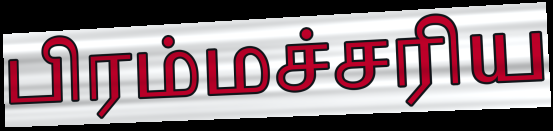
பிரம்மச்சரிய